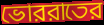
ভোররাতের